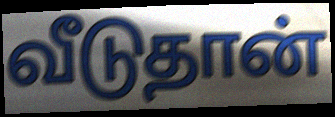
வீடுதான்